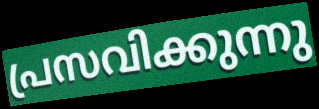
പ്രസവിക്കുന്നു